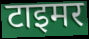
टाइमर